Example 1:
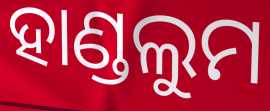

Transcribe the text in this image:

ହାଣ୍ଡଲୁମ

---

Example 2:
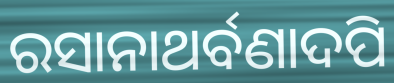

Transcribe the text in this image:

ରସାନାଥର୍ବଣାଦପି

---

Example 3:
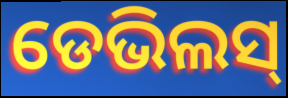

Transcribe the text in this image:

ଡେଭିଲସ୍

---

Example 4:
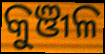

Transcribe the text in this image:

କୁଞ୍ଜଳ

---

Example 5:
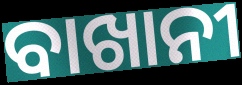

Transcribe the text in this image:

ବାଖାନୀ